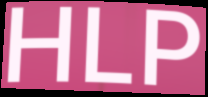
HLP